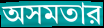
অসমতার